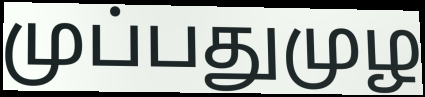
முப்பதுமுழ